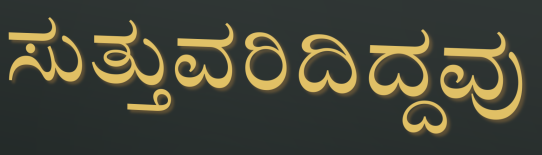
ಸುತ್ತುವರಿದಿದ್ದವು